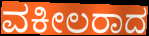
ವಕೀಲರಾದ